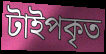
টাইপকৃত